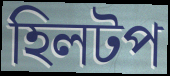
হিলটপ